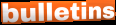
bulletins